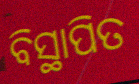
ବିସ୍ଥାପିତ